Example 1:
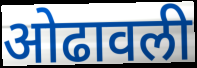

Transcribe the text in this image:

ओढावली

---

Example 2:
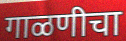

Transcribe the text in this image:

गाळणीचा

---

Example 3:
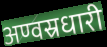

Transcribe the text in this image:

अण्वस्रधारी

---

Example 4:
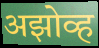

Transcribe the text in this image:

अझोव्ह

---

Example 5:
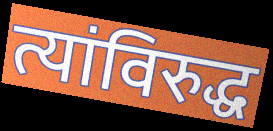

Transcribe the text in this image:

त्यांविरुद्ध